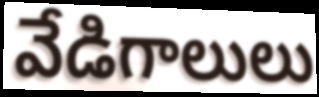
వేడిగాలులు